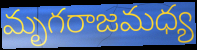
మృగరాజమధ్య